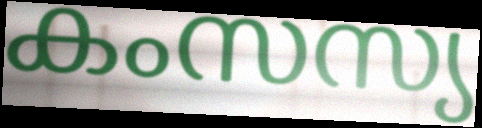
കംസസ്യ